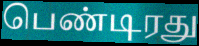
பெண்டிரது